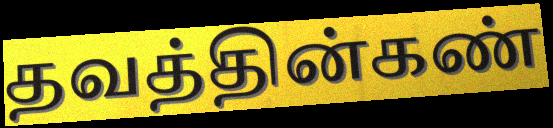
தவத்தின்கண்